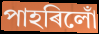
পাহৰিলোঁ